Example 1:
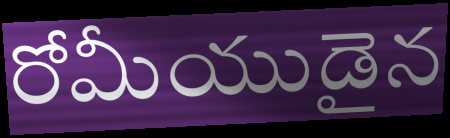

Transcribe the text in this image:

రోమీయుడైన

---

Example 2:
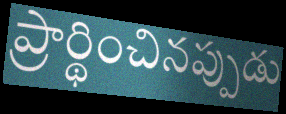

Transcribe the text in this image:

ప్రార్థించినప్పుడు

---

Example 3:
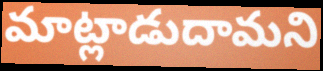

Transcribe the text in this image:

మాట్లాడుదామని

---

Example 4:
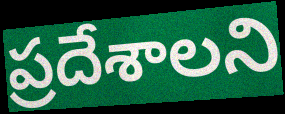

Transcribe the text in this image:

ప్రదేశాలని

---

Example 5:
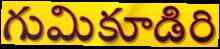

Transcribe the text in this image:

గుమికూడిరి